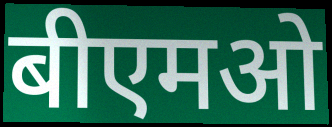
बीएमओ